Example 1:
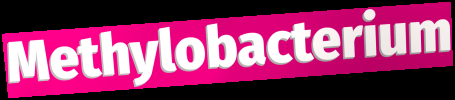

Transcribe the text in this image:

Methylobacterium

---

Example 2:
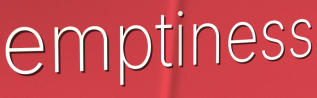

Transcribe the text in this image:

emptiness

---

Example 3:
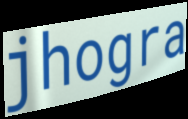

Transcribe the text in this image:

jhogra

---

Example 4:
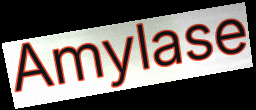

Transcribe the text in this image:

Amylase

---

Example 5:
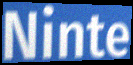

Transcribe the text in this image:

Ninte